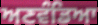
ਅਣਵੰਡਿਆ